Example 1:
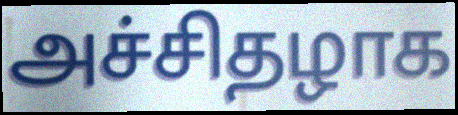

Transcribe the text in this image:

அச்சிதழாக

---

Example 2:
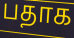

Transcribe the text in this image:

பதாக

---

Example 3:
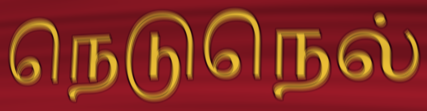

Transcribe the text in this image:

நெடுநெல்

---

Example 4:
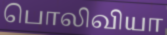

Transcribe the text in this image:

பொலிவியா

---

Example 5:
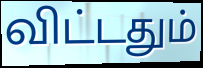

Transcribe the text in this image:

விட்டதும்